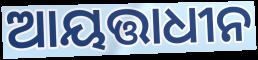
ଆୟତ୍ତାଧୀନ